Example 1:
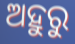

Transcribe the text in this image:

ଅହୁରୁ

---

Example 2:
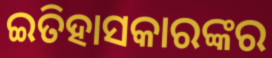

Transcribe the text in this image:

ଇତିହାସକାରଙ୍କର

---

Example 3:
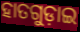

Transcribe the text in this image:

ହାତଗୁଡ଼ାଇ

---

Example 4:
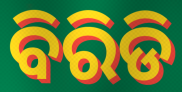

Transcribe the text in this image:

ବିରିଡି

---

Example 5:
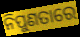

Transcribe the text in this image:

ନିପୁଣତାରେ